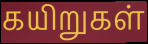
கயிறுகள்